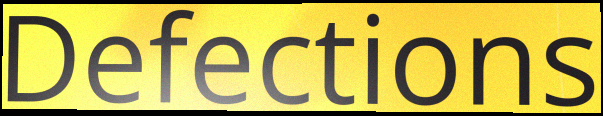
Defections